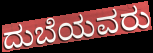
ದುಬೆಯವರು